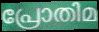
പ്രോതിമ